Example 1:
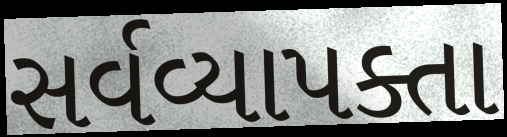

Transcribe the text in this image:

સર્વવ્યાપક્તા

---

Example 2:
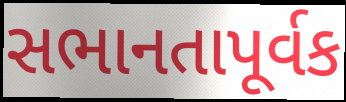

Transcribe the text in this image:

સભાનતાપૂર્વક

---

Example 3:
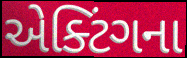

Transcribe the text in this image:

એક્ટિંગના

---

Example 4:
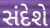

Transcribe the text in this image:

સંદેશે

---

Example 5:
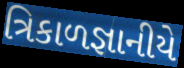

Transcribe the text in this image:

ત્રિકાળજ્ઞાનીયે